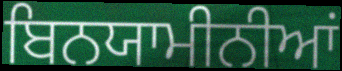
ਬਿਨਯਾਮੀਨੀਆਂ